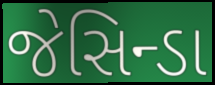
જેસિન્ડા